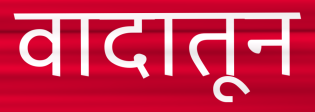
वादातून